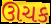
ઊચક